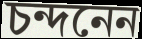
চন্দনেন